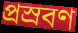
প্রস্রবণ